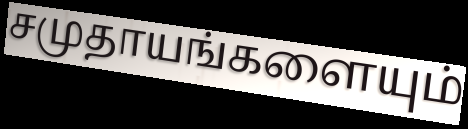
சமுதாயங்களையும்